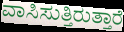
ವಾಸಿಸುತ್ತಿರುತ್ತಾರೆ